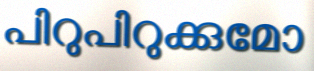
പിറുപിറുക്കുമോ